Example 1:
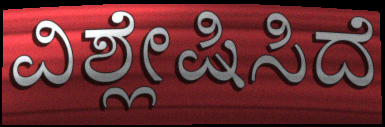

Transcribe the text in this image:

ವಿಶ್ಲೇಷಿಸಿದೆ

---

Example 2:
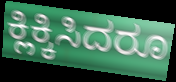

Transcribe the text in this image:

ಕ್ಲಿಕ್ಕಿಸಿದರೂ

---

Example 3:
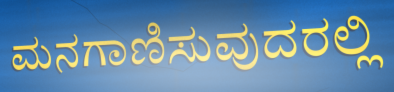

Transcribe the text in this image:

ಮನಗಾಣಿಸುವುದರಲ್ಲಿ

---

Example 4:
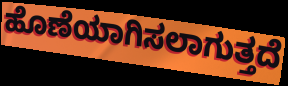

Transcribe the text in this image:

ಹೊಣೆಯಾಗಿಸಲಾಗುತ್ತದೆ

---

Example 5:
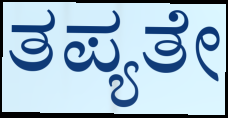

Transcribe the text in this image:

ತಪ್ಯತೇ